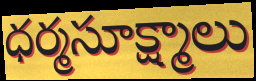
ధర్మసూక్ష్మాలు